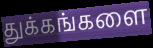
துக்கங்களை